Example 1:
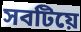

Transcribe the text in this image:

সবটিয়ে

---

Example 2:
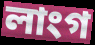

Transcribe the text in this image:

লাংগ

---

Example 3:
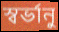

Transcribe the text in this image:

স্বর্ভানু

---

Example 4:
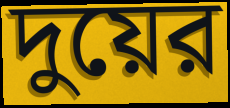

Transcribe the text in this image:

দুয়ের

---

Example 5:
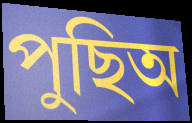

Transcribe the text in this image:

পুছিঅ